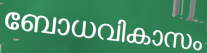
ബോധവികാസം